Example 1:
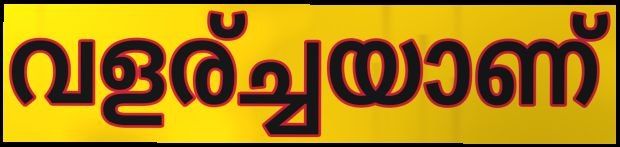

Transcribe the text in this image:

വളര്ച്ചയാണ്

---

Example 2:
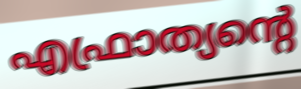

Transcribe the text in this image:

എഫ്രാത്യന്റെ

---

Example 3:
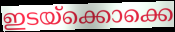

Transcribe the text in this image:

ഇടയ്ക്കൊക്കെ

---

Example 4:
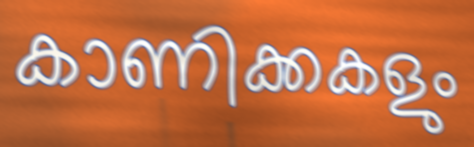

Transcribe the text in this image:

കാണിക്കകളും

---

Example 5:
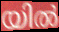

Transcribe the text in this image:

യിൽ